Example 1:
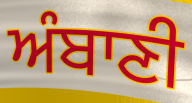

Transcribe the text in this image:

ਅੰਬਾਣੀ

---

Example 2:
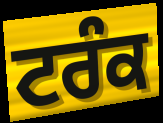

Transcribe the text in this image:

ਟਰੰਕ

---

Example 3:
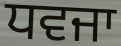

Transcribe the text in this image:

ਧਵਜਾ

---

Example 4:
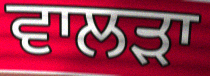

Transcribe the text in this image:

ਵਾਲੜਾ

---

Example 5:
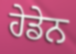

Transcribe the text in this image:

ਹੇਡੇਨ